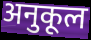
अनुकूल